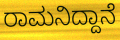
ರಾಮನಿದ್ದಾನೆ